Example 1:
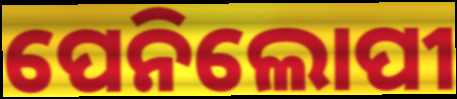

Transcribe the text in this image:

ପେନିଲୋପୀ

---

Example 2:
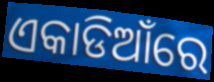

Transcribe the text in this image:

ଏକାଡିଆଁରେ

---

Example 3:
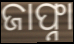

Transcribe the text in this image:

ଜାଫ୍ନା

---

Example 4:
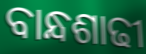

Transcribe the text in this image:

ବାନ୍ଧଶାଢୀ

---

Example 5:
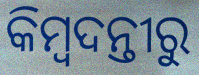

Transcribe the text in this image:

କିମ୍ବଦନ୍ତୀରୁ